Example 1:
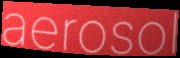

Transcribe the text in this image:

aerosol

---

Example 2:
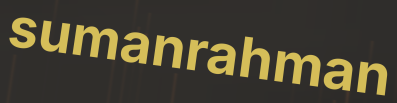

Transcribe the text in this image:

sumanrahman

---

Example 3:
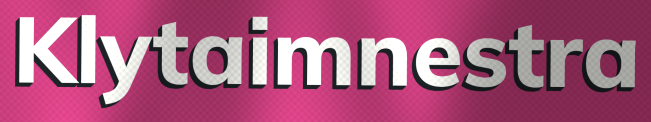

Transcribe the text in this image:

Klytaimnestra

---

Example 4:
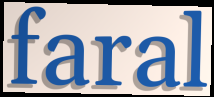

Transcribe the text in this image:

faral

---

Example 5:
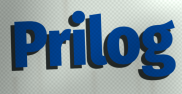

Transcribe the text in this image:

Prilog